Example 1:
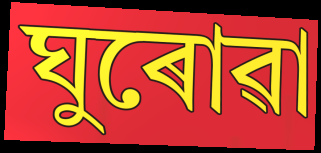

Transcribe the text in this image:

ঘুৰোৱা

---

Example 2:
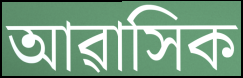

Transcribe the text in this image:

আৱাসিক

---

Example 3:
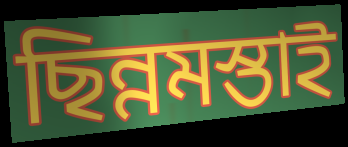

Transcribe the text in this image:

ছিন্নমস্তাই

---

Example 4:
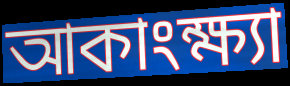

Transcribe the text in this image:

আকাংক্ষ্যা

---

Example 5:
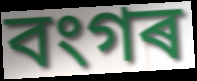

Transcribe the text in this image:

বংগৰ